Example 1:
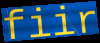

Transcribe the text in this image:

fiir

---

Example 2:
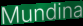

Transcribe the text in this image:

Mundina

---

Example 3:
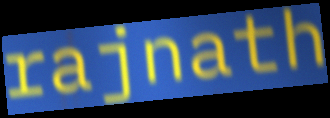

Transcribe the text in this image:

rajnath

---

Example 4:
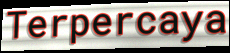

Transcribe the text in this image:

Terpercaya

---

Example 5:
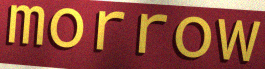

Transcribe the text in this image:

morrow